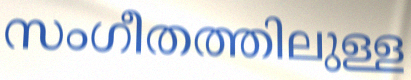
സംഗീതത്തിലുള്ള